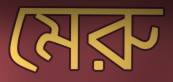
মেরু